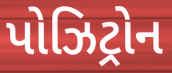
પોઝિટ્રોન